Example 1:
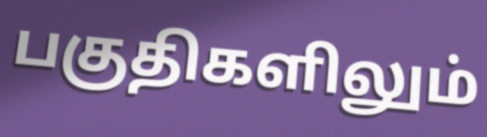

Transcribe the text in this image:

பகுதிகளிலும்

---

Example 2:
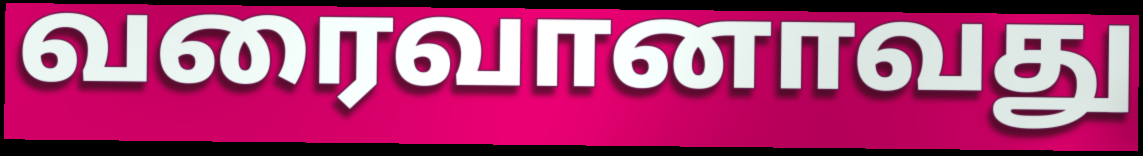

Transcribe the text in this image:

வரைவானாவது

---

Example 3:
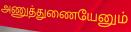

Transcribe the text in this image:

அணுத்துணையேனும்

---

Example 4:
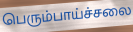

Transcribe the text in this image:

பெரும்பாய்ச்சலை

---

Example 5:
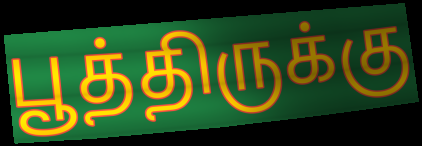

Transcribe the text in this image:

பூத்திருக்கு